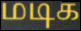
மடிக